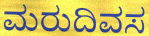
ಮರುದಿವಸ